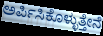
ಅರ್ಪಿಸಿಕೊಳ್ಳುತ್ತೇನೆ